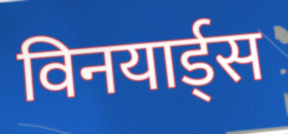
विनयार्ड्स